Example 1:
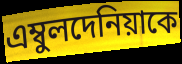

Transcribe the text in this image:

এম্বুলদেনিয়াকে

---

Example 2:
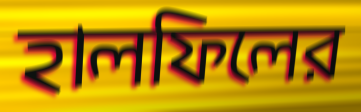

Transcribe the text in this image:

হালফিলের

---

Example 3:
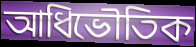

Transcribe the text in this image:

আধিভৌতিক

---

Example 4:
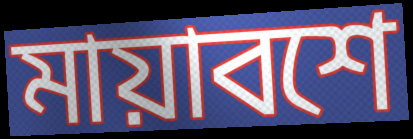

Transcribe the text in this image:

মায়াবশে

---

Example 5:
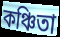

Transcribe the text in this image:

কঞ্চিতা